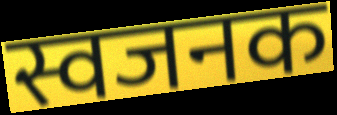
स्वजनक